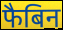
फैबिन